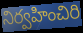
నిర్వహించిరి